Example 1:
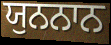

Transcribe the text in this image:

ਯੁਨਨਾਨ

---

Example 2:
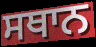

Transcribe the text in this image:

ਸਥਾਨ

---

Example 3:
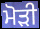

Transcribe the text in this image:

ਮੋੜੀ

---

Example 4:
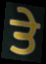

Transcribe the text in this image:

ਤੇ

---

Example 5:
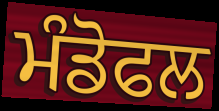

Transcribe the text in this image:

ਮੰਡੋਫਲ